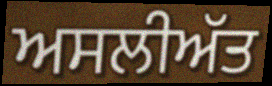
ਅਸਲੀਅੱਤ